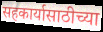
सहकार्यासाठीच्या